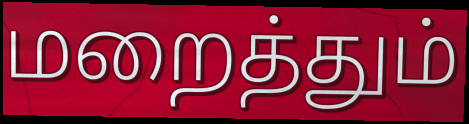
மறைத்தும்